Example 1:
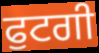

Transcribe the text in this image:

ਫੁਟਗੀ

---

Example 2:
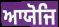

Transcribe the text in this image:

ਆਯੋਜਿ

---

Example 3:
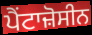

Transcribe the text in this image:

ਪੈਂਟਾਜ਼ੋਸੀਨ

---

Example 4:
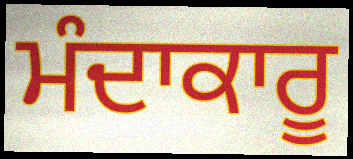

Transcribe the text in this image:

ਮੰਦਾਕਾਰੂ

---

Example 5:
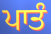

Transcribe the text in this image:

ਪਾਤੰ